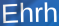
Ehrh